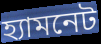
হ্যামনেট